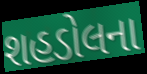
શહડોલના